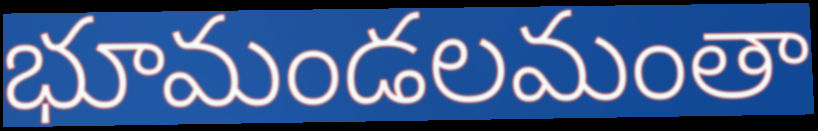
భూమండలమంతా